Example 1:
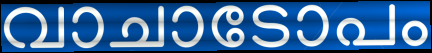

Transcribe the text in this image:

വാചാടോപം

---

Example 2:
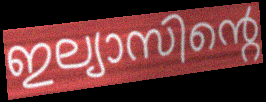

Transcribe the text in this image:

ഇല്യാസിന്റെ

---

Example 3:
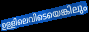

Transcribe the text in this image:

ഉള്ളിലെവിടെയെങ്കിലും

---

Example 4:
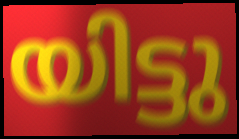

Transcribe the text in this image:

യിട്ടു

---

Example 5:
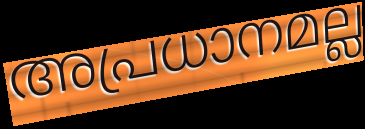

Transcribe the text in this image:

അപ്രധാനമല്ല